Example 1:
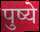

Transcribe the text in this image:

पुष्ये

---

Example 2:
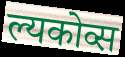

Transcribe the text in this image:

ल्यकोव्स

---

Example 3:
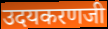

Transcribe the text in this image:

उदयकरणजी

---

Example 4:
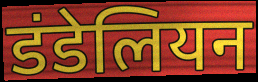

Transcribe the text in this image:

डंडेलियन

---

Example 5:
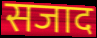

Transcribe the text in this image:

सजाद